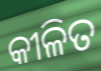
କୀଳିତ